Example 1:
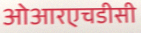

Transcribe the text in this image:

ओआरएचडीसी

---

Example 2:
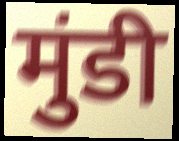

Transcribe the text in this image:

मुंडी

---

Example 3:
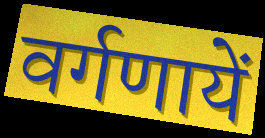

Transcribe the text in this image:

वर्गणायें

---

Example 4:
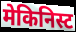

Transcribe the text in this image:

मेकिनिस्ट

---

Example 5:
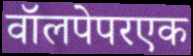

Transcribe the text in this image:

वॉलपेपरएक